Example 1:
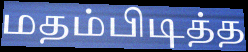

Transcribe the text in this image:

மதம்பிடித்த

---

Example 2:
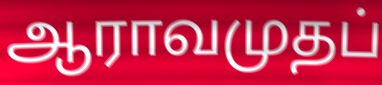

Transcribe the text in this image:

ஆராவமுதப்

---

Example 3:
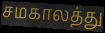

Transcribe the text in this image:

சமகாலத்து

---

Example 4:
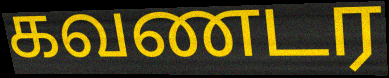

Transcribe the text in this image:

கவணடர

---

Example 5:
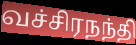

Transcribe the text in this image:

வச்சிரநந்தி